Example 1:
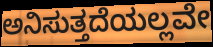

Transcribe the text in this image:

ಅನಿಸುತ್ತದೆಯಲ್ಲವೇ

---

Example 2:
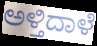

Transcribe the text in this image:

ಅಳ್ತಿದಾಳೆ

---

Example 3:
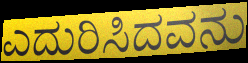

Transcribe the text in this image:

ಎದುರಿಸಿದವನು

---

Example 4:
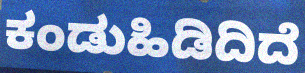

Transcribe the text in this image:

ಕಂಡುಹಿಡಿದಿದೆ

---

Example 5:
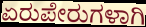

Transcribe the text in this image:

ಏರುಪೇರುಗಳಾಗಿ